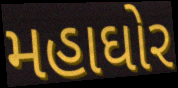
મહાઘોર